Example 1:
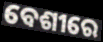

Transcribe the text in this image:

ବେଶୀରେ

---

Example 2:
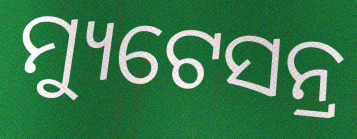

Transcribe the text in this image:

ମ୍ୟୁଟେସନ୍ର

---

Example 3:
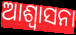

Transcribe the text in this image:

ଆଶ୍ୱାସନା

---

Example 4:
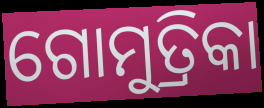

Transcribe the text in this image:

ଗୋମୁତ୍ରିକା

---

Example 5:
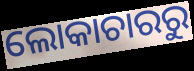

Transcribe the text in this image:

ଲୋକାଚାରରୁ